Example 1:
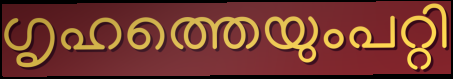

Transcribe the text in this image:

ഗൃഹത്തെയുംപറ്റി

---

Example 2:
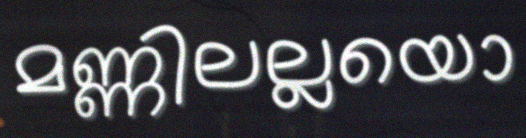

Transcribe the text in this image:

മണ്ണിലല്ലയൊ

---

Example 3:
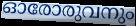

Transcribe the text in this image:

ഓരോരുവനും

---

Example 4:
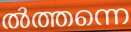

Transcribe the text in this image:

ൽത്തന്നെ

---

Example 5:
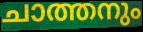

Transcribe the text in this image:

ചാത്തനും